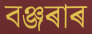
বঞ্জৰাৰ